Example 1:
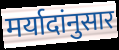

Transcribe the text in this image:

मर्यादांनुसार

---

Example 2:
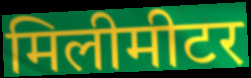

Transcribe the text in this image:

मिलीमीटर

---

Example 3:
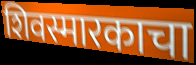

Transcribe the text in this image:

शिवस्मारकाचा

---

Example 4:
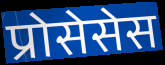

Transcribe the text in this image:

प्रोसेसेस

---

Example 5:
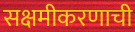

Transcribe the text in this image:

सक्षमीकरणाची